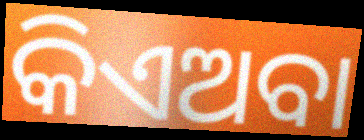
କିଏଅବା